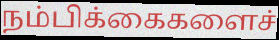
நம்பிக்கைகளைச்